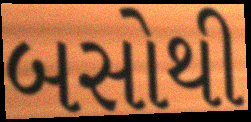
બસોથી